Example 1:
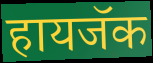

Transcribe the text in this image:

हायजॅक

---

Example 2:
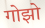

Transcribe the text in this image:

गोझो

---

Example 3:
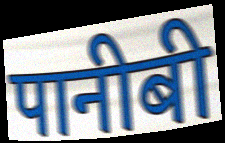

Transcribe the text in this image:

पानीबी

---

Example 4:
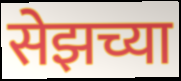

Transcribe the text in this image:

सेझच्या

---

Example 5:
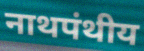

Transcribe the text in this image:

नाथपंथीय